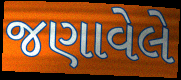
જણાવેલે